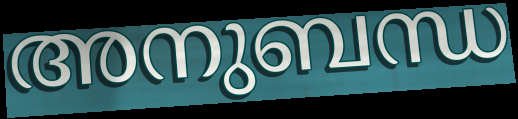
അനുബന്ധ